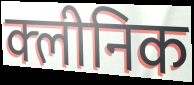
क्‍लीनिक